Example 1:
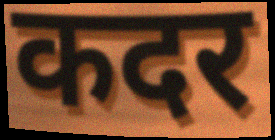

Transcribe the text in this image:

कदर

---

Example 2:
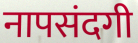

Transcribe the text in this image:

नापसंदगी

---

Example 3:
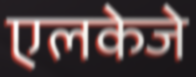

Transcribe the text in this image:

एलकेजे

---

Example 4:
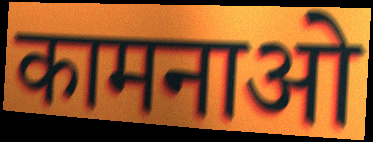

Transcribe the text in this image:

कामनाओ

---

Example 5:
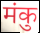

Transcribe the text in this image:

मंकु